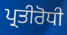
ਪ੍ਰਤੀਰੋਧੀ